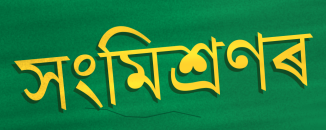
সংমিশ্ৰণৰ